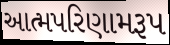
આત્મપરિણામરૂપ